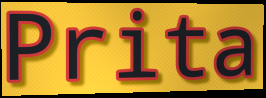
Prita